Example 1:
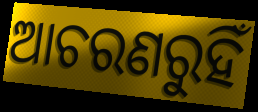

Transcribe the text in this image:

ଆଚରଣରୁହିଁ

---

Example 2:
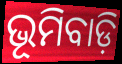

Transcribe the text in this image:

ଭୂମିବାଡ଼ି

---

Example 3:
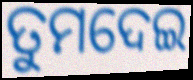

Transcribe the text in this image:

ତୁମଦେଇ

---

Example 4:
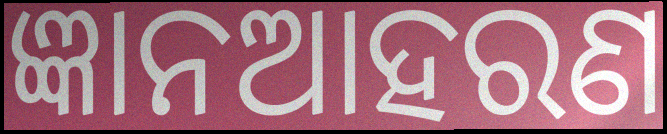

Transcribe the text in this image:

ଜ୍ଞାନଆହରଣ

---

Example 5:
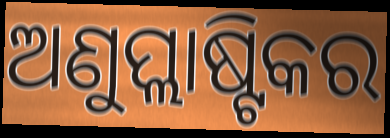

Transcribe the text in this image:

ଅଣୁପ୍ଲାଷ୍ଟିକର